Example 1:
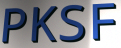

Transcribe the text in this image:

PKSF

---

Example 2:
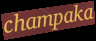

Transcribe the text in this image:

champaka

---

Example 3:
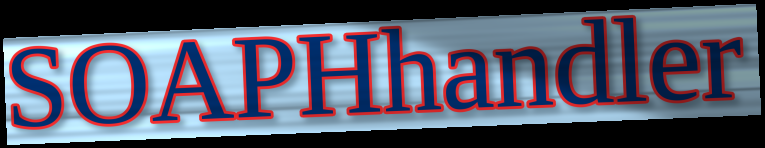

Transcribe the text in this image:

SOAPHhandler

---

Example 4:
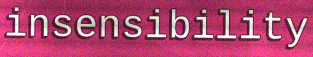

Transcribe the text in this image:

insensibility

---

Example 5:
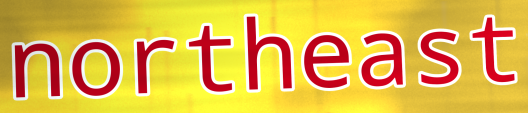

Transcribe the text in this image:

northeast